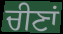
ਚੀਣਾਂ